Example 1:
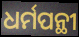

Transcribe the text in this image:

ଧର୍ମପନ୍ଥୀ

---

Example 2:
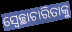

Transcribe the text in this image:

ସ୍ଵେଚ୍ଛାଚାରିତାକୁ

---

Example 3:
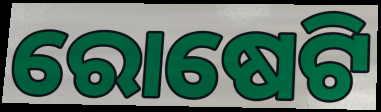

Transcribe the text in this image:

ରୋଷେଟି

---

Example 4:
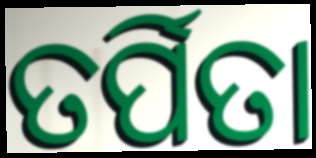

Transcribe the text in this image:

ତର୍ପିତା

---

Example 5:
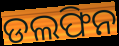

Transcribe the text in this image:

ଡଲଫିନ